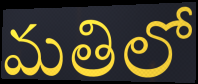
మతిలో